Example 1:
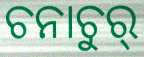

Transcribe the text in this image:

ଚନାଚୁର୍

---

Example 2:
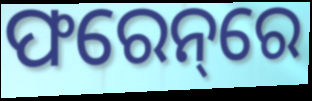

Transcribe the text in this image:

ଫରେନ୍‌ରେ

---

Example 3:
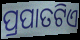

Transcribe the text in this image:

ପ୍ରପାତଟିଏ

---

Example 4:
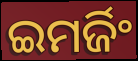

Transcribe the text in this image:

ଇମର୍ଜିଂ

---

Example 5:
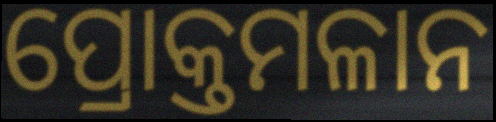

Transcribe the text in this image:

ପ୍ରୋକ୍ତମଳାନ